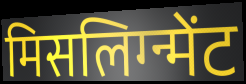
मिसलिग्न्मेंट